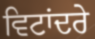
ਵਿਟਾਂਦਰੇ